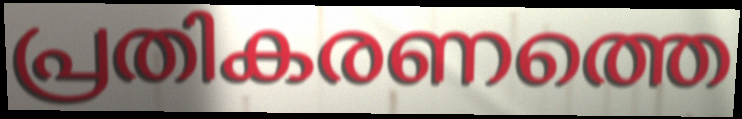
പ്രതികരണത്തെ